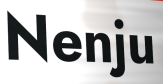
Nenju